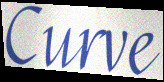
Curve